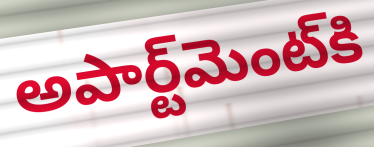
అపార్ట్‌మెంట్‌కి